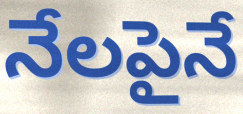
నేలపైనే